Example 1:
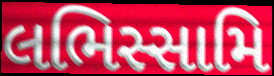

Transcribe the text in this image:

લભિસ્સામિ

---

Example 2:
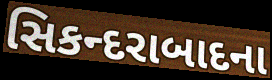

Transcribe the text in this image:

સિકન્દરાબાદના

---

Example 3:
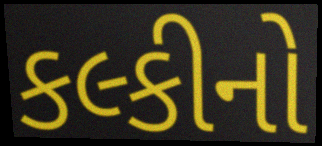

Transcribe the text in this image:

કલ્કીનો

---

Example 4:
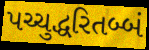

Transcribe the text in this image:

પચ્ચુદ્ધરિતબ્બં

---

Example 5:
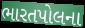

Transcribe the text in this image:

ભારતપોલના